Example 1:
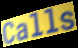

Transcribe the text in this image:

Calls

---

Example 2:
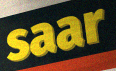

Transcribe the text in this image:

saar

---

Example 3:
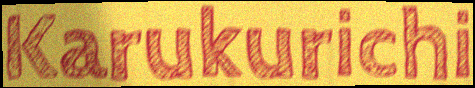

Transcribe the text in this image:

Karukurichi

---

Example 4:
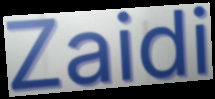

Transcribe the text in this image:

Zaidi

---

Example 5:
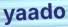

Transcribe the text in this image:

yaado